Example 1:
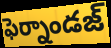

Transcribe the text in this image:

ఫెర్నాండజ్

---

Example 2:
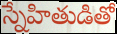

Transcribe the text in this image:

స్నేహితుడితో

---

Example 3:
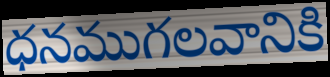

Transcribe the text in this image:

ధనముగలవానికి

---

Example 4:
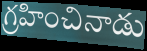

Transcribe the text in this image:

గ్రహించినాడు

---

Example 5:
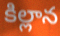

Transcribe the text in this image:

కిల్లాన